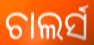
ଚାଲର୍ସ